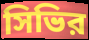
সিভির